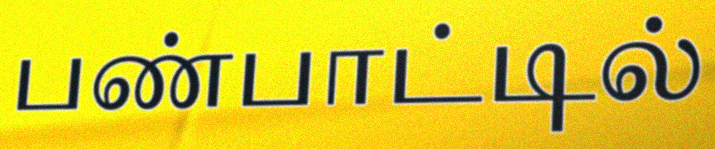
பண்பாட்டில்